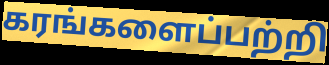
கரங்களைப்பற்றி